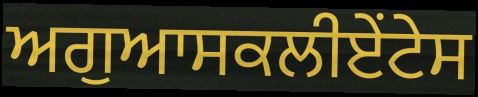
ਅਗੁਆਸਕਲੀਏਂਟੇਸ